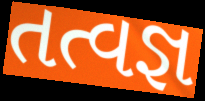
તત્વજ્ઞ